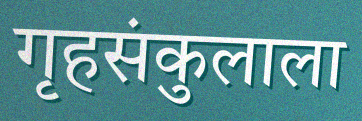
गृहसंकुलाला